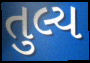
તુલ્ય